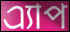
এ্যাপ